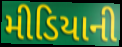
મીડિયાની